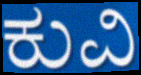
ಕುವಿ